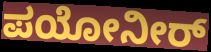
ಪಯೋನೀರ್